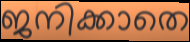
ജനിക്കാതെ